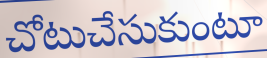
చోటుచేసుకుంటూ